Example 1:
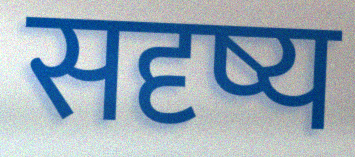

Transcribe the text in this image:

सदृष्य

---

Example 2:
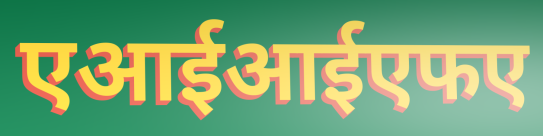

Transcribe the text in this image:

एआईआईएफए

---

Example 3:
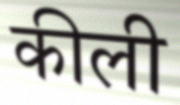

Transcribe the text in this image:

कीली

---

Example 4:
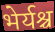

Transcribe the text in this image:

भेर्यश्च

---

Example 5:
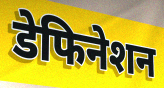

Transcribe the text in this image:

डेफिनेशन